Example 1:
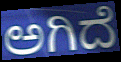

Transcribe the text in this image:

ಅಗಿದೆ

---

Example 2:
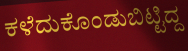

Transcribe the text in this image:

ಕಳೆದುಕೊಂಡುಬಿಟ್ಟಿದ್ದ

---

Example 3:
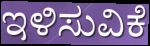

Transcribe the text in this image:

ಇಳಿಸುವಿಕೆ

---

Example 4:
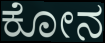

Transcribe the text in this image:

ಕೋನ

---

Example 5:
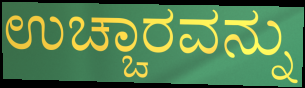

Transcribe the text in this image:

ಉಚ್ಚಾರವನ್ನು